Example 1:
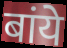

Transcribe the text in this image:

बांये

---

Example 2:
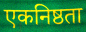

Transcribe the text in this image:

एकनिष्ठता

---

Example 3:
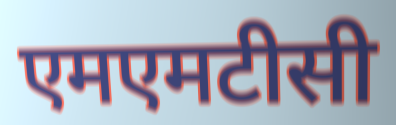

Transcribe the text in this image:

एमएमटीसी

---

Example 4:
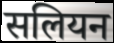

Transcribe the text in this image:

सलियन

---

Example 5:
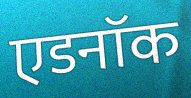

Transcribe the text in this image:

एडनॉक